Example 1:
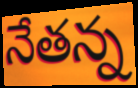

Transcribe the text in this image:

నేతన్న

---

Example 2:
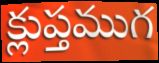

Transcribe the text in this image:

క్లుప్తముగ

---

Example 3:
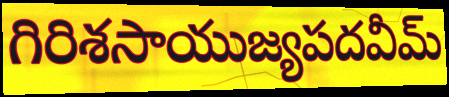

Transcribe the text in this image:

గిరిశసాయుజ్యపదవీమ్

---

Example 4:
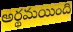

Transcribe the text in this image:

అర్థమయింది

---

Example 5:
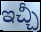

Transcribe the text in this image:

ఇచ్చీ